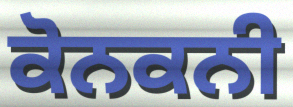
ਕੋਨਕਨੀ